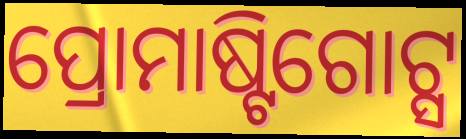
ପ୍ରୋମାଷ୍ଟିଗୋଟ୍ସ